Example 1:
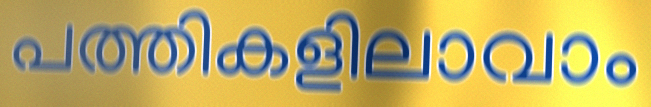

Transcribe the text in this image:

പത്തികളിലാവാം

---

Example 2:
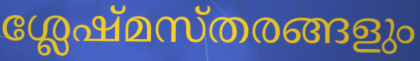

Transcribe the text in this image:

ശ്ലേഷ്മസ്തരങ്ങളും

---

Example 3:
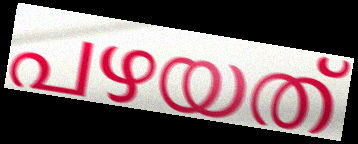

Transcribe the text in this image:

പഴയത്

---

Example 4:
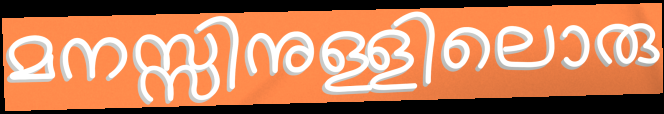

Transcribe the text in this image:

മനസ്സിനുള്ളിലൊരു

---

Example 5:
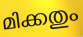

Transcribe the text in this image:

മിക്കതും